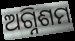
ଅଗ୍ନିଶମ